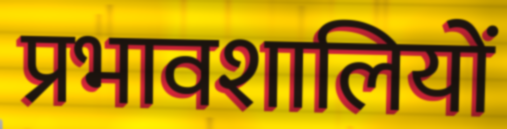
प्रभावशालियों